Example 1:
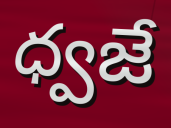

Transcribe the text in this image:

ధ్వజే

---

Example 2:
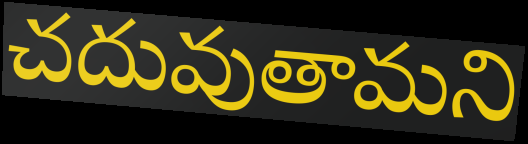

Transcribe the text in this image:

చదువుతామని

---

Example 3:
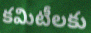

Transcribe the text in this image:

కమిటీలకు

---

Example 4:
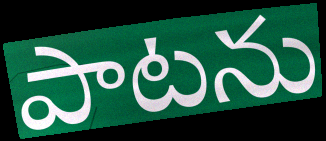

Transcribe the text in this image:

పాటను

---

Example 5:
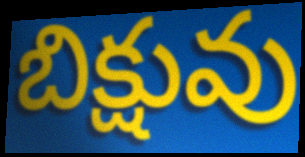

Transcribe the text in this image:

బిక్షువు